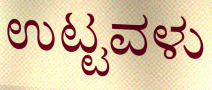
ಉಟ್ಟವಳು